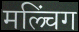
मल्चिंग